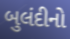
બુલંદીનો